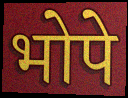
भोपे